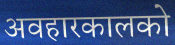
अवहारकालको